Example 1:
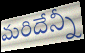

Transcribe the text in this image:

మరిదేన్నీ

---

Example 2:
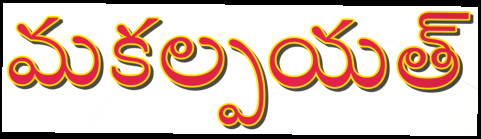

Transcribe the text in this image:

మకల్పయత్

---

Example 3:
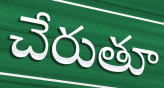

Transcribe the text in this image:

చేరుతూ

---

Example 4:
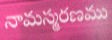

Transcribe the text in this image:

నామస్మరణము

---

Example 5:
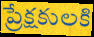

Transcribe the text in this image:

ప్రేక్షకులకి